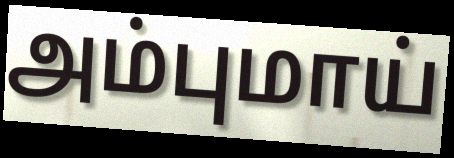
அம்புமாய்